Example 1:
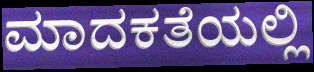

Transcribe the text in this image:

ಮಾದಕತೆಯಲ್ಲಿ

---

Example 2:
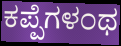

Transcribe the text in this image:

ಕಪ್ಪೆಗಳಂಥ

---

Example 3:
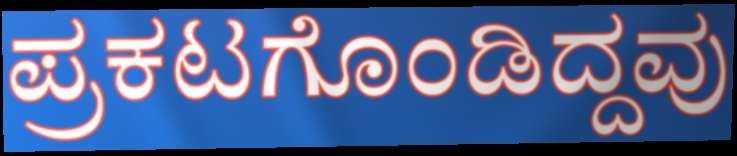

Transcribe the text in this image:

ಪ್ರಕಟಗೊಂಡಿದ್ದವು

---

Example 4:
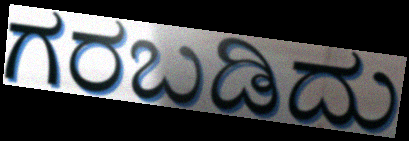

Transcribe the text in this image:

ಗರಬಡಿದು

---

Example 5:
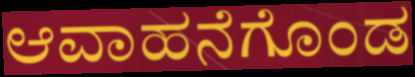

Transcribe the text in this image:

ಆವಾಹನೆಗೊಂಡ